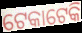
ଟେକାଟେକି